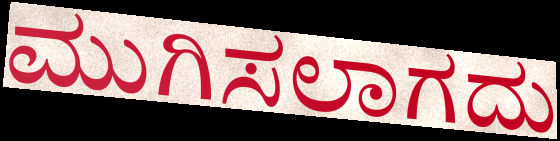
ಮುಗಿಸಲಾಗದು